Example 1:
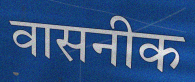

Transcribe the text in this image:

वासनीक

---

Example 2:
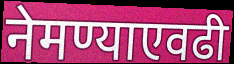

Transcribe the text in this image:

नेमण्याएवढी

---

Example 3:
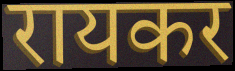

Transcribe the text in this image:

रायकर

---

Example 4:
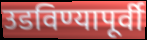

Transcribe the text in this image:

उडविण्यापूर्वी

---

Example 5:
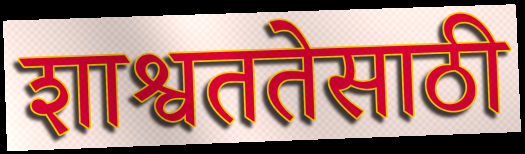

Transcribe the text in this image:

शाश्वततेसाठी